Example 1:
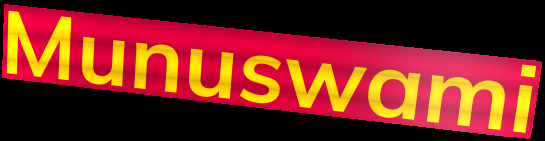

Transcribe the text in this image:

Munuswami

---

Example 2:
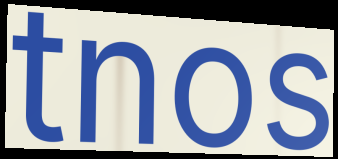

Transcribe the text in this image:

tnos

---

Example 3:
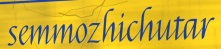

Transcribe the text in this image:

semmozhichutar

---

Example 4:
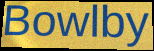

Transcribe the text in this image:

Bowlby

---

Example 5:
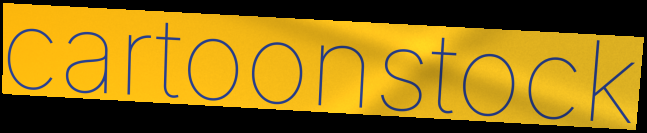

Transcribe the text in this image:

cartoonstock